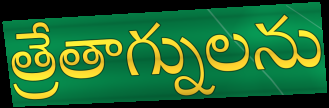
త్రేతాగ్నులను